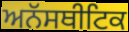
ਅਨੱਸਥੀਟਿਕ